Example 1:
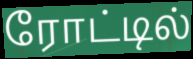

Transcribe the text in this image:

ரோட்டில்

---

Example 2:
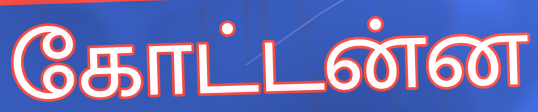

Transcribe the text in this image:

கோட்டன்ன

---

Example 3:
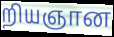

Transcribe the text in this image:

றியஞான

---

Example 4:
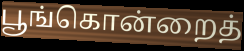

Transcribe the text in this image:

பூங்கொன்றைத்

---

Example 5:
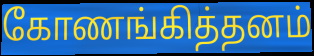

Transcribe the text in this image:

கோணங்கித்தனம்